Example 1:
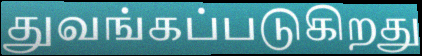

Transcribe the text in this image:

துவங்கப்படுகிறது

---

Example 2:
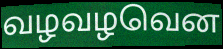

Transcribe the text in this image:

வழவழவென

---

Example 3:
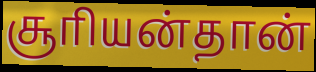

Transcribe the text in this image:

சூரியன்தான்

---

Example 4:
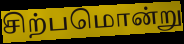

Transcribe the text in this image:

சிற்பமொன்று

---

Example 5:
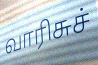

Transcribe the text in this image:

வாரிசுச்